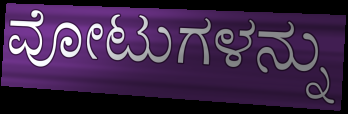
ವೋಟುಗಳನ್ನು